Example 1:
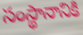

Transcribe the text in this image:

సంస్థానానికి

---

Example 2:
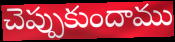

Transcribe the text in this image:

చెప్పుకుందాము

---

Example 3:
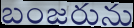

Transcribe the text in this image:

బంజరును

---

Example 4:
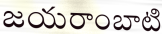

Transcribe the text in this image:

జయరాంబాటి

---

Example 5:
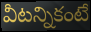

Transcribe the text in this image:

వీటన్నికంటే